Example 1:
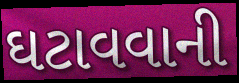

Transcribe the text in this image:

ઘટાવવાની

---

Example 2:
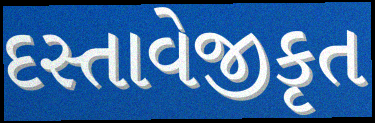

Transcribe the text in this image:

દસ્તાવેજીકૃત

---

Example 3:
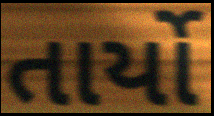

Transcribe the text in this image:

તાર્યો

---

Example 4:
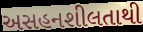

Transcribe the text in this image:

અસહનશીલતાથી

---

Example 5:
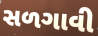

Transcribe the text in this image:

સળગાવી